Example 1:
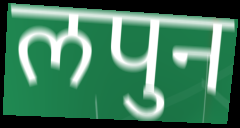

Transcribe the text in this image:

लपुन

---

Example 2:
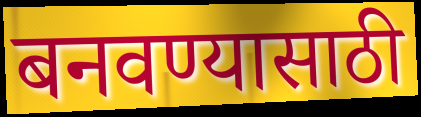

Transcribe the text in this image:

बनवण्यासाठी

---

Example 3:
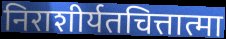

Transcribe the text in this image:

निराशीर्यतचित्तात्मा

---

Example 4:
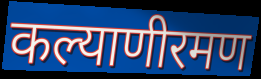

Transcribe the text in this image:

कल्याणीरमण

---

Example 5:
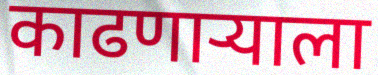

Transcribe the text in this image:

काढणार्‍याला